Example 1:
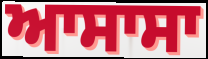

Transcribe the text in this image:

ਆਸਾਸਾ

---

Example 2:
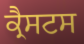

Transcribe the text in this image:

ਕ੍ਰੈਸਟਸ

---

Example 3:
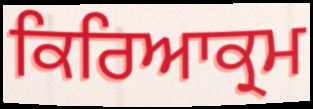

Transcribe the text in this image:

ਕਿਰਿਆਕ੍ਰਮ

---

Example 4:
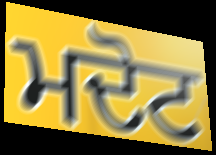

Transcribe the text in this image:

ਮਦੋਟ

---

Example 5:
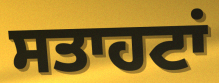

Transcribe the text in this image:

ਸਤਾਹਟਾਂ